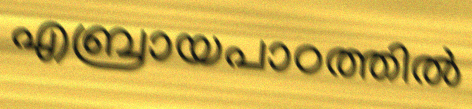
എബ്രായപാഠത്തിൽ